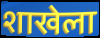
शाखेला